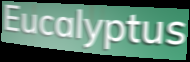
Eucalyptus